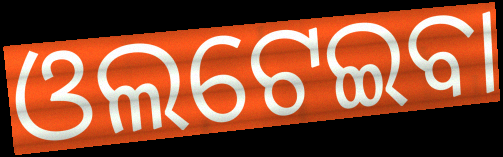
ଓଲଟେଇବା